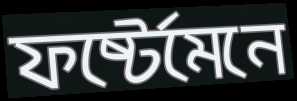
ফৰ্ষ্টেমেনে